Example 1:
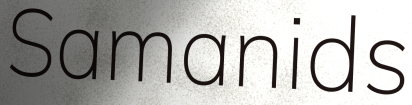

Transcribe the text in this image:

Samanids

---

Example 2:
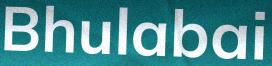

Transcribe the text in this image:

Bhulabai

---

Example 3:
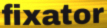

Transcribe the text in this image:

fixator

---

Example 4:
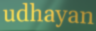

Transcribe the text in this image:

udhayan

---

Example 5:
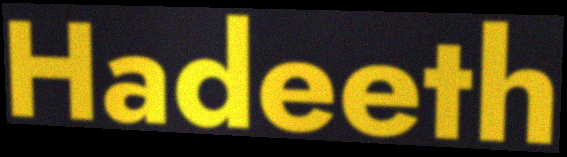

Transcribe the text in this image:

Hadeeth